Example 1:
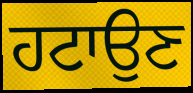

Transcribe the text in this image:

ਹਟਾਉਣ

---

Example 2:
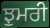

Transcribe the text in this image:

ਝੁਮਰੀ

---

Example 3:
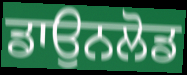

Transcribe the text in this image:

ਡਾਉਨਲੋਡ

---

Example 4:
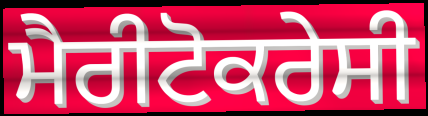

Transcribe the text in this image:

ਮੈਰੀਟੋਕਰੇਸੀ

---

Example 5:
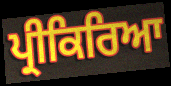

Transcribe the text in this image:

ਪ੍ਰੀਕਿਰਿਆ